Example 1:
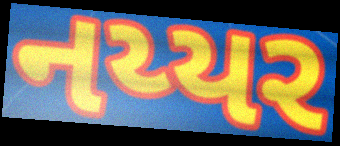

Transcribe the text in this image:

નય્યર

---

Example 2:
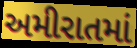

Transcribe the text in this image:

અમીરાતમાં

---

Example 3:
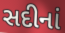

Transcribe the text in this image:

સદીનાં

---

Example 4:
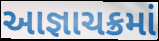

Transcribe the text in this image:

આજ્ઞાચક્રમાં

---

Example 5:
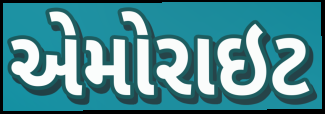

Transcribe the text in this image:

એમોરાઇટ